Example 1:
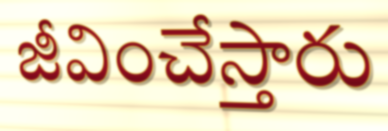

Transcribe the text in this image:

జీవించేస్తారు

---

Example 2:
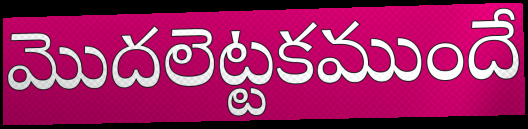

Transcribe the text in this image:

మొదలెట్టకముందే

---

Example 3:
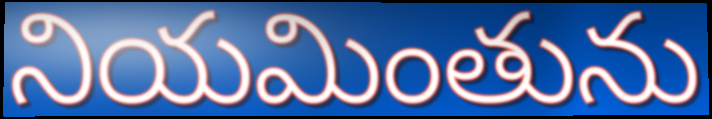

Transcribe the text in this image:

నియమింతును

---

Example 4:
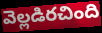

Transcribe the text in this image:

వెల్లడిరచింది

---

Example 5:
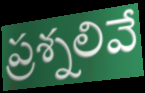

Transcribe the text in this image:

ప్రశ్నలివే